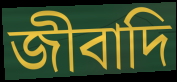
জীবাদি